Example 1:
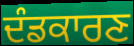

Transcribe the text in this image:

ਦੰਡਕਾਰਣ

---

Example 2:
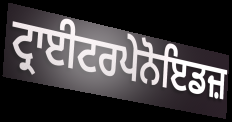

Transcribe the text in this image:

ਟ੍ਰਾਈਟਰਪੇਨੋਇਡਜ਼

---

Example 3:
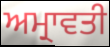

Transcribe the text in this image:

ਅਮ੍ਰਾਵਤੀ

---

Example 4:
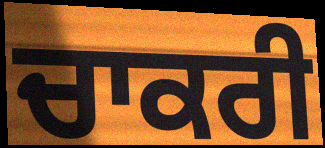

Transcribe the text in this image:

ਚਾਕਰੀ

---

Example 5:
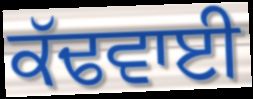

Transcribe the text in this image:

ਕੱਢਵਾਈ